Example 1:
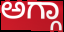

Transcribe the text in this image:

ಅಗ್ಗಾ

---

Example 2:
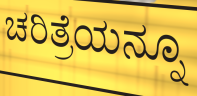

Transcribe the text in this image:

ಚರಿತ್ರೆಯನ್ನೂ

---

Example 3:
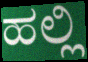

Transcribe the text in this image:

ಹಲ್ಲಿ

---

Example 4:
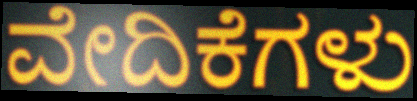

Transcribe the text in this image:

ವೇದಿಕೆಗಳು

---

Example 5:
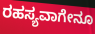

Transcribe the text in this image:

ರಹಸ್ಯವಾಗೇನೂ